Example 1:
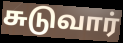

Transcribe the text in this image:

சுடுவார்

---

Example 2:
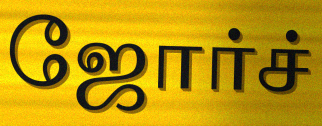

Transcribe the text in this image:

ஜோர்ச்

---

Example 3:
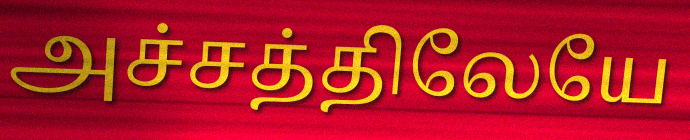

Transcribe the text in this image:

அச்சத்திலேயே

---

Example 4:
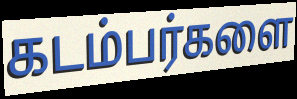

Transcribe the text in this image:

கடம்பர்களை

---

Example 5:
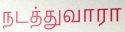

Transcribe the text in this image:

நடத்துவாரா